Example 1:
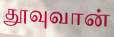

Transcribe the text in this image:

தூவுவான்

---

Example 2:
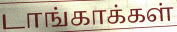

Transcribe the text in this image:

டாங்காக்கள்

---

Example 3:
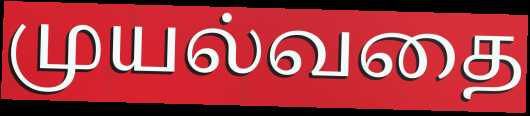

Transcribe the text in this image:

முயல்வதை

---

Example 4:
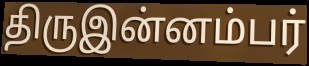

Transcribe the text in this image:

திருஇன்னம்பர்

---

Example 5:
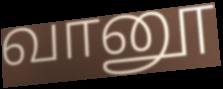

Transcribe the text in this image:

வானூ